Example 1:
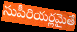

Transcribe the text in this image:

సుపీరియర్లమైతే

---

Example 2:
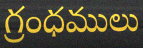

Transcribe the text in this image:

గ్రంధములు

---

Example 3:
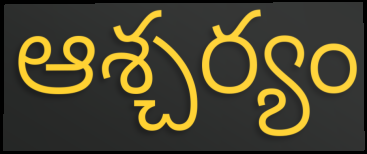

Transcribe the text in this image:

ఆశ్చర్యం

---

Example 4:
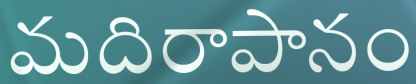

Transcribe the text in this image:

మదిరాపానం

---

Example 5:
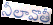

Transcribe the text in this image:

నీలావొతీ